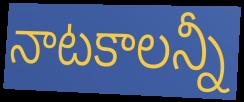
నాటకాలన్నీ